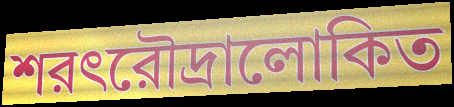
শরৎরৌদ্রালোকিত